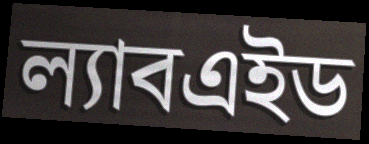
ল্যাবএইড